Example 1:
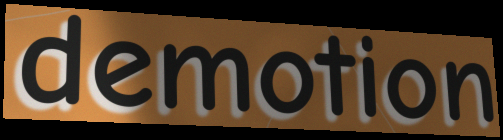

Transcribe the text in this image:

demotion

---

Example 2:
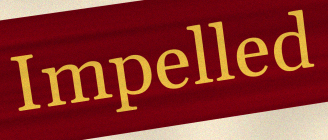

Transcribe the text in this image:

Impelled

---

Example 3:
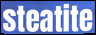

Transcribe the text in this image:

steatite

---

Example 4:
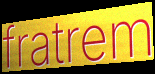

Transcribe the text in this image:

fratrem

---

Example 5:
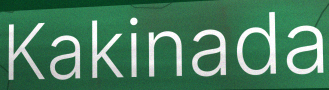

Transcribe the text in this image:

Kakinada